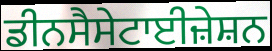
ਡੀਨਸੈਸੇਟਾਈਜ਼ੇਸ਼ਨ